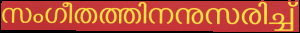
സംഗീതത്തിനനുസരിച്ച്